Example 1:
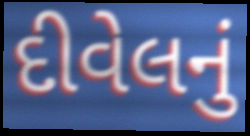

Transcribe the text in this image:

દીવેલનું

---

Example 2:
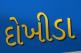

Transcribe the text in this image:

દોખીડા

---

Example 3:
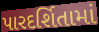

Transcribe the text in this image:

પારદર્શિતામાં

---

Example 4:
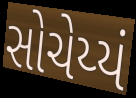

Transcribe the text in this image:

સોચેય્યં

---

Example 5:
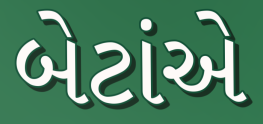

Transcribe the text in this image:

બેટાંએ